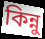
কিন্নু